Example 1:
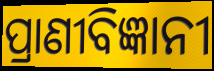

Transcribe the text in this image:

ପ୍ରାଣୀବିଜ୍ଞାନୀ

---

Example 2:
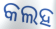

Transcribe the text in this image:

କଲହ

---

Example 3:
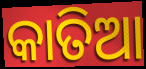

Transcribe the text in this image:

କାତିଆ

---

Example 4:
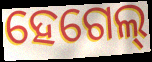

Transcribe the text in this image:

ହେଗେଲ୍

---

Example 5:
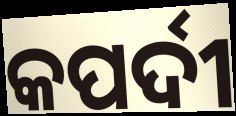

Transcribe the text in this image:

କପର୍ଦୀ